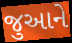
જુઆને